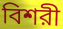
বিশরী